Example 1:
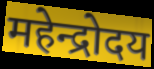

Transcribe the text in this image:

महेन्द्रोदय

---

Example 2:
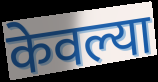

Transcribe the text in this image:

केवल्या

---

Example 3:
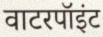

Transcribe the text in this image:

वाटरपॉइंट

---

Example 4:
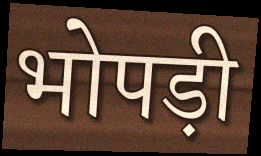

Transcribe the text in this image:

भोपड़ी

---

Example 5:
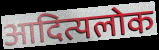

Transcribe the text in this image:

आदित्यलोक